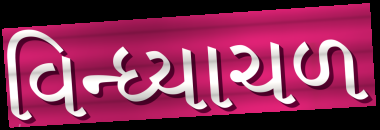
વિન્ધ્યાચળ